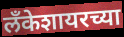
लँकेशायरच्या